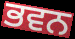
ਭਵਨ